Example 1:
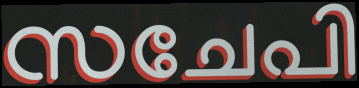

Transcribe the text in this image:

സചേപി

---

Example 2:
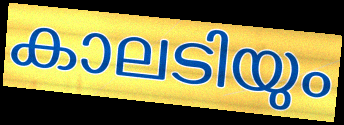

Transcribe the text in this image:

കാലടിയും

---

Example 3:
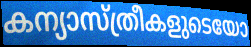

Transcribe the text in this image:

കന്യാസ്ത്രീകളുടെയോ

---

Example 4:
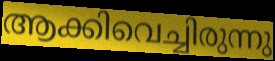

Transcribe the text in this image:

ആക്കിവെച്ചിരുന്നു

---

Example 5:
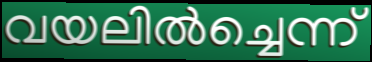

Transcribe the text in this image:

വയലിൽച്ചെന്ന്